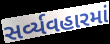
સર્વ્યવહારમાં